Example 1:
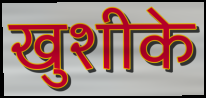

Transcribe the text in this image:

खुशीके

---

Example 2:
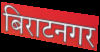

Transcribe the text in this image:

बिराटनगर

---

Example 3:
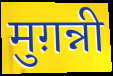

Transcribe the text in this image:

मुग़न्नी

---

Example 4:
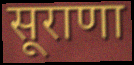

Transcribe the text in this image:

सूराणा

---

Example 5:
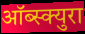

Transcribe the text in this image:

ऑब्स्क्युरा